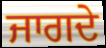
ਜਾਗਦੇ